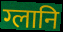
ग्लानि